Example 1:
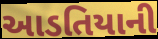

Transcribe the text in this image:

આડતિયાની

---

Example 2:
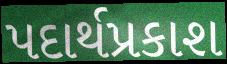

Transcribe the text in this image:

પદાર્થપ્રકાશ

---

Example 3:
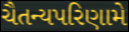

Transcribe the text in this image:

ચૈતન્યપરિણામે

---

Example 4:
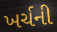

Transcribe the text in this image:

ખર્ચની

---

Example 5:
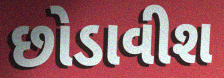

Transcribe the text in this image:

છોડાવીશ